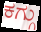
ಕಗ್ಗು